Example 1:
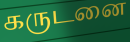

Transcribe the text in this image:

கருடனை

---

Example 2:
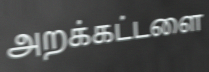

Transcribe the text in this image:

அறக்கட்டளை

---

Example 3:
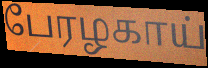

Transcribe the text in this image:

பேரழகாய்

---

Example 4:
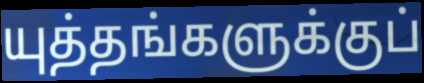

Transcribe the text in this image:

யுத்தங்களுக்குப்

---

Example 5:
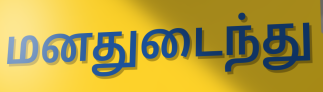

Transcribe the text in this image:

மனதுடைந்து